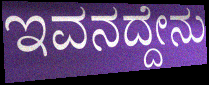
ಇವನದ್ದೇನು